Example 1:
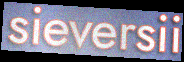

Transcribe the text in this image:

sieversii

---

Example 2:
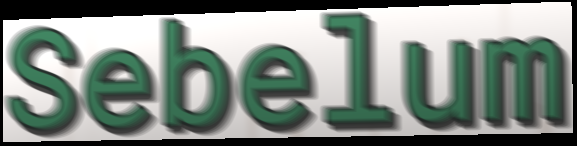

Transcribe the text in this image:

Sebelum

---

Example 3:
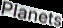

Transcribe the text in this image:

Planets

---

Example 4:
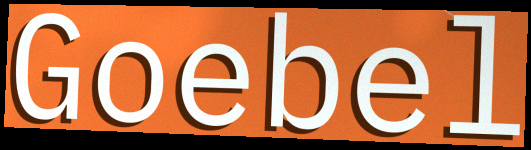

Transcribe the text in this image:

Goebel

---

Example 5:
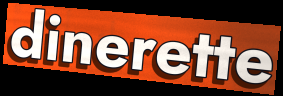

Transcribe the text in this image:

dinerette